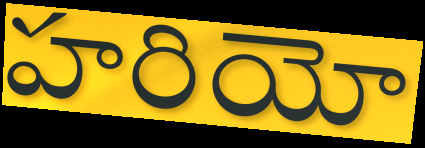
హరియో